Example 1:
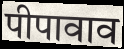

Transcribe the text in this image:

पीपावाव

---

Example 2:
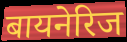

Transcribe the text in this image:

बायनेरिज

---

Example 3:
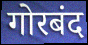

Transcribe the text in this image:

गोरबंद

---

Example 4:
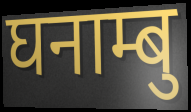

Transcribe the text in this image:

घनाम्बु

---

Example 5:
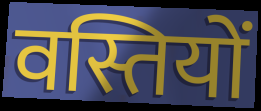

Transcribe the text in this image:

वस्तियों